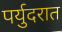
पर्युदरात